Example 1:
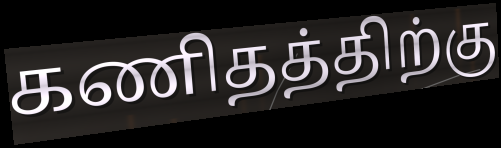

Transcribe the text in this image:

கணிதத்திற்கு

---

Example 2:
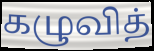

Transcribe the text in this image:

கழுவித்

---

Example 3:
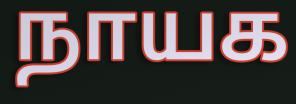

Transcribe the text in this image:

நாயக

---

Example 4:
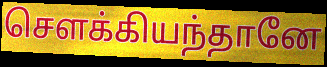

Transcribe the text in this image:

சௌக்கியந்தானே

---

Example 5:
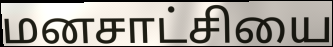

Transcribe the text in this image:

மனசாட்சியை